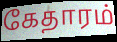
கேதாரம்